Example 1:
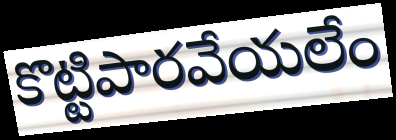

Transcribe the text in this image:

కొట్టిపారవేయలేం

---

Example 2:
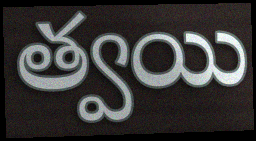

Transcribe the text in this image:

త్వయి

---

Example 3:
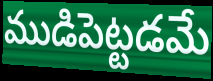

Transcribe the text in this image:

ముడిపెట్టడమే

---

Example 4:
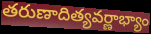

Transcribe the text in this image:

తరుణాదిత్యవర్ణాభ్యాం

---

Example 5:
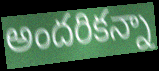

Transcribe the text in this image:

అందరికన్నా